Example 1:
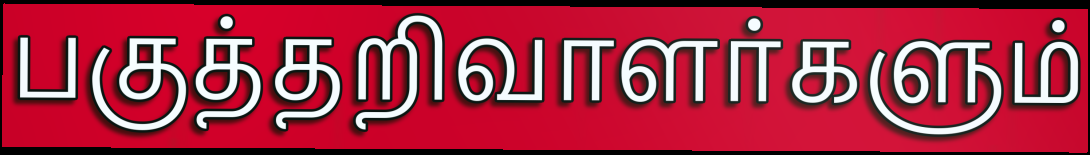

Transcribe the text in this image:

பகுத்தறிவாளர்களும்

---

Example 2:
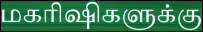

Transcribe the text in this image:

மகரிஷிகளுக்கு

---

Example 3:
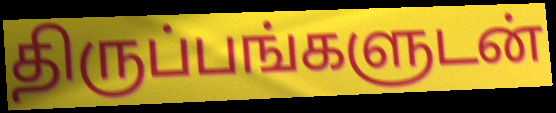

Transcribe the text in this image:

திருப்பங்களுடன்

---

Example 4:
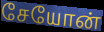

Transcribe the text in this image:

சேயோன்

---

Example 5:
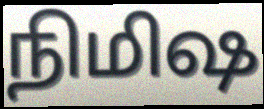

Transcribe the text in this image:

நிமிஷ